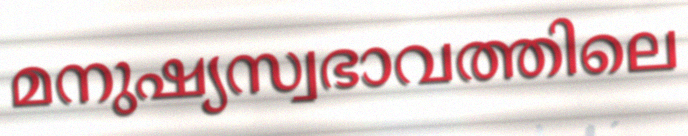
മനുഷ്യസ്വഭാവത്തിലെ